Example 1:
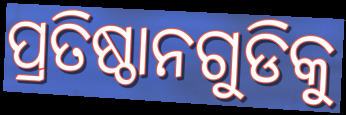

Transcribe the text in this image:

ପ୍ରତିଷ୍ଠାନଗୁଡିକୁ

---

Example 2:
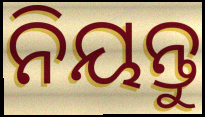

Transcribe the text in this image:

ନିୟନ୍ତୁ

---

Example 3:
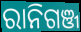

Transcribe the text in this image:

ରାନିଗଞ୍ଜ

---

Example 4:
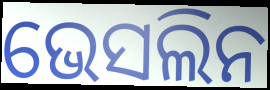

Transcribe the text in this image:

ଭେସଲିନ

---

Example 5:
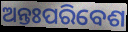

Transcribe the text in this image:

ଅନ୍ତଃପରିବେଶ